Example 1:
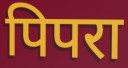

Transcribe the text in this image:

पिपरा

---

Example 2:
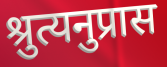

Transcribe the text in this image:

श्रुत्यनुप्रास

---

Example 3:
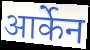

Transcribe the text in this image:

आर्केन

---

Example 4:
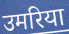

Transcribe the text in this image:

उमरिया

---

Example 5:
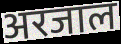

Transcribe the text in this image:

अरजाल